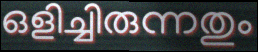
ഒളിച്ചിരുന്നതും